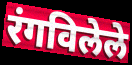
रंगविलेले